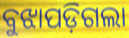
ବୁଝାପଡ଼ିଗଲା